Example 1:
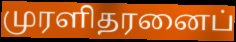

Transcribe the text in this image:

முரளிதரனைப்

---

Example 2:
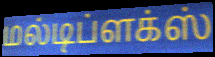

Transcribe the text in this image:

மல்டிப்ளக்ஸ்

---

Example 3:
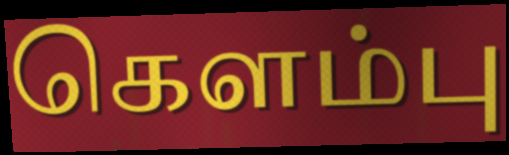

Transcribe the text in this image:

கௌம்பு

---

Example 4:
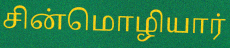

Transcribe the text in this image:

சின்மொழியார்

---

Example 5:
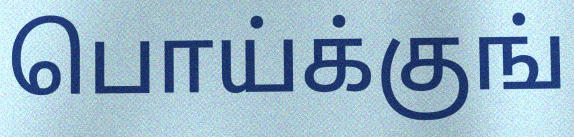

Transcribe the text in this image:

பொய்க்குங்